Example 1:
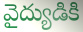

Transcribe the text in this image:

వైద్యుడికి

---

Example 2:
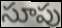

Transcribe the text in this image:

సూపు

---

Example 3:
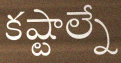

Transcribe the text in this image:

కష్టాల్నే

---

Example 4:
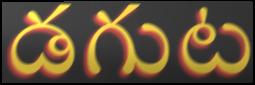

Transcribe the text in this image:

డగుట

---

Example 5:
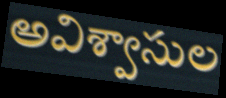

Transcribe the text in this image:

అవిశ్వాసుల